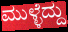
ಮುಳ್ಳೆದ್ದು